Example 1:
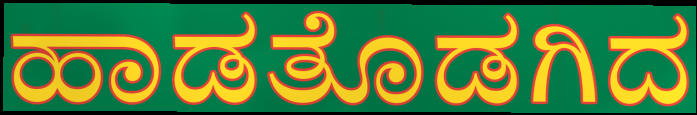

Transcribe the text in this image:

ಹಾಡತೊಡಗಿದ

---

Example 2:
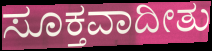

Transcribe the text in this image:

ಸೂಕ್ತವಾದೀತು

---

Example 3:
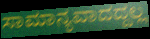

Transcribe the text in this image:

ಸಾಮಾನ್ಯವಾದದ್ದಲ್ಲ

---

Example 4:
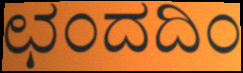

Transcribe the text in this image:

ಛಂದದಿಂ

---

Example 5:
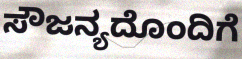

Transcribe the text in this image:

ಸೌಜನ್ಯದೊಂದಿಗೆ